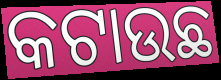
କଟାଉଛ